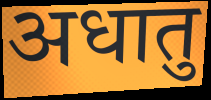
अधातु